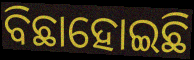
ବିଛାହୋଇଛି